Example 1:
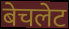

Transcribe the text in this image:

बेचलेट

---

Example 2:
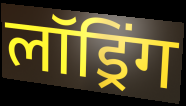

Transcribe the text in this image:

लॉड्रिंग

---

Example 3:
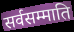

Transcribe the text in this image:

सर्वसम्माति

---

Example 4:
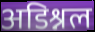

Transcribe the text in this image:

अडिश्नल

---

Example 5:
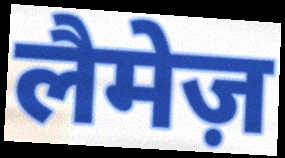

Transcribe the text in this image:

लैमेज़